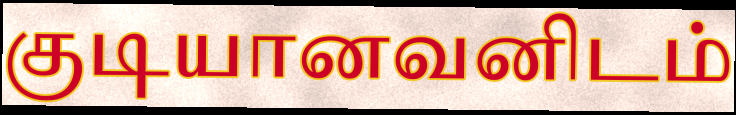
குடியானவனிடம்